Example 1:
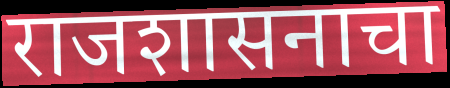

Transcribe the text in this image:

राजशासनाचा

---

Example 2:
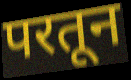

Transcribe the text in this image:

परतून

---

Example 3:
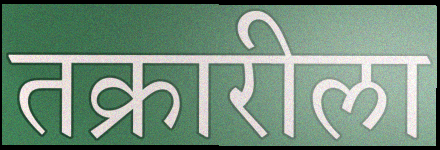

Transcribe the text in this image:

तक्रारीला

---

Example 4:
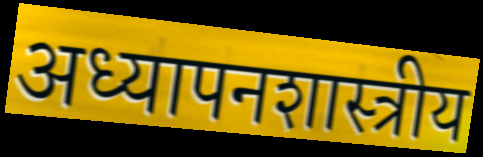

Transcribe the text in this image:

अध्यापनशास्त्रीय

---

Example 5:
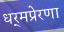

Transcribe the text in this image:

धर्मप्रेरणा